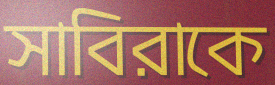
সাবিরাকে